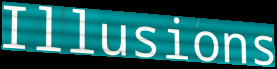
Illusions